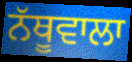
ਨੱਥੂਵਾਲਾ